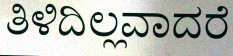
ತಿಳಿದಿಲ್ಲವಾದರೆ